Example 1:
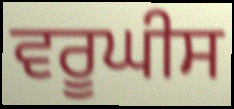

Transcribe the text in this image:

ਵਰੂਘੀਸ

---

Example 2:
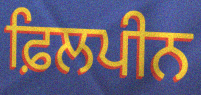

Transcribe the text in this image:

ਫ਼ਿਲਪੀਨ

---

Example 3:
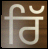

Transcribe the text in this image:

ਰਿੱ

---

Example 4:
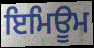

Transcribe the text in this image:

ਇਮਿਊਮ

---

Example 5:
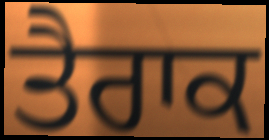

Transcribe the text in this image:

ਤੈਰਾਕ